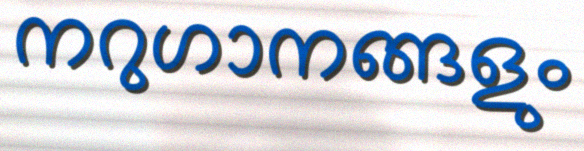
നറുഗാനങ്ങളും